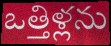
ఒత్తిళ్లను